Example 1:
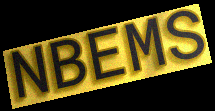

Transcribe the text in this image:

NBEMS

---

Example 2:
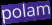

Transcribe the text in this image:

polam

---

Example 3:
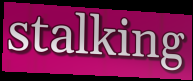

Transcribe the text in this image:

stalking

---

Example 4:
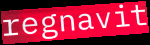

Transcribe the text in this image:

regnavit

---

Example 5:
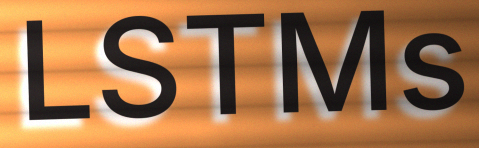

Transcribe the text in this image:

LSTMs